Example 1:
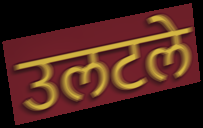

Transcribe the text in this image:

उलटले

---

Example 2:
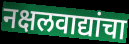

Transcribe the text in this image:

नक्षलवाद्यांचा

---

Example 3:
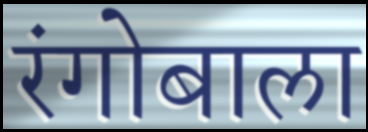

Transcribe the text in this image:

रंगोबाला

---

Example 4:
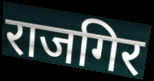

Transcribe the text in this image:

राजगिर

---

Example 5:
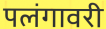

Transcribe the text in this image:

पलंगावरी